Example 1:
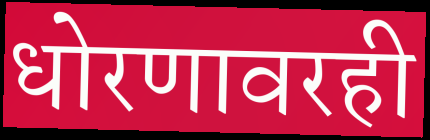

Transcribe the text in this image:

धोरणावरही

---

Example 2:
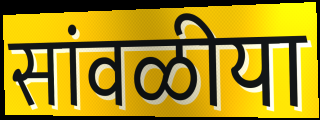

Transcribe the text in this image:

सांवळीया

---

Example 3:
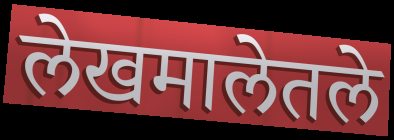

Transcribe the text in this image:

लेखमालेतले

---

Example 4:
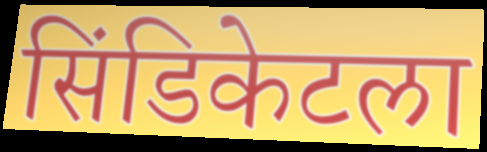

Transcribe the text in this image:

सिंडिकेटला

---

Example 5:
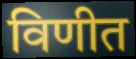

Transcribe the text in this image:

विणीत